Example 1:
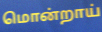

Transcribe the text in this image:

மொன்றாய்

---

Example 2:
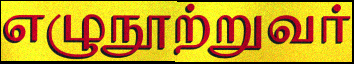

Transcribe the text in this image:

எழுநூற்றுவர்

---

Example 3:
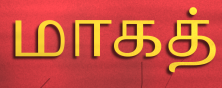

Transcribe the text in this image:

மாகத்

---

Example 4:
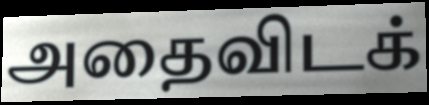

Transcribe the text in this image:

அதைவிடக்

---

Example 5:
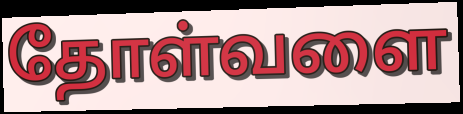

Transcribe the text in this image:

தோள்வளை